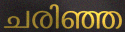
ചരിഞ്ഞ